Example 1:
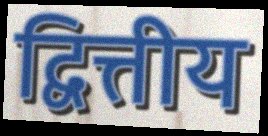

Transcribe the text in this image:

द्वित्तीय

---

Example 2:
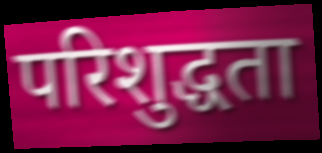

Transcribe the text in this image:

परिशुद्धता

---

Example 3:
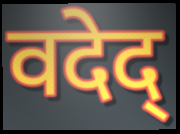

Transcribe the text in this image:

वदेद्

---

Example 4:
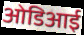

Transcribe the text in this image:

ओडिआई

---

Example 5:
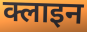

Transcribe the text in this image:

क्लाइन